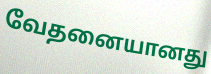
வேதனையானது